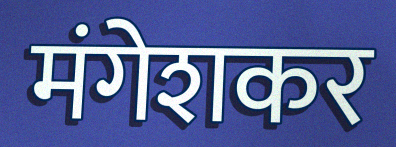
मंगेशकर